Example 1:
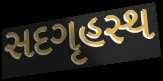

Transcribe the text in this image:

સદગૃહસ્થ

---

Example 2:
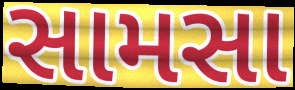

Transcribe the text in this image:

સામસા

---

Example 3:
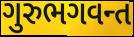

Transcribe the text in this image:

ગુરુભગવન્ત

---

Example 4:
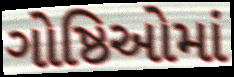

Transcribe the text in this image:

ગોષ્ઠિઓમાં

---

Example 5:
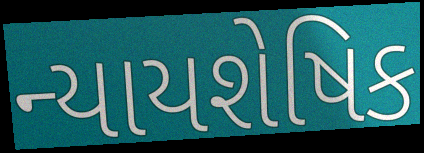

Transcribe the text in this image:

ન્યાયશેષિક